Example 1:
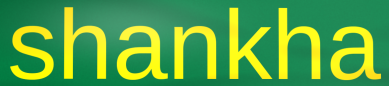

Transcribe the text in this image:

shankha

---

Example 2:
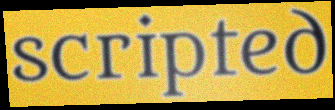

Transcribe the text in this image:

scripted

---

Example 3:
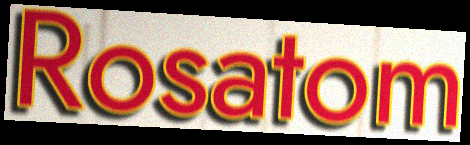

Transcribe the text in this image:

Rosatom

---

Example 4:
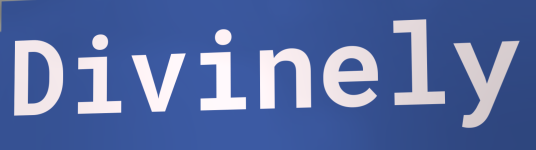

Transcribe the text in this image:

Divinely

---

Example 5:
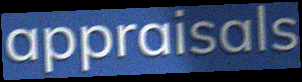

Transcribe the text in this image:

appraisals